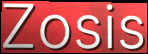
Zosis